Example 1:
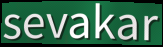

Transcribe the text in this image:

sevakar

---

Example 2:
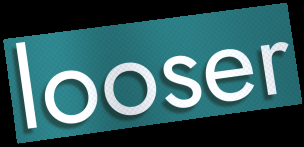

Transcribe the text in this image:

looser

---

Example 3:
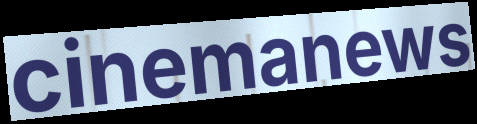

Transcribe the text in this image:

cinemanews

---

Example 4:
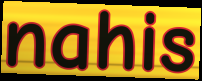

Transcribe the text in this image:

nahis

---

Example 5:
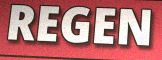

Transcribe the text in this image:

REGEN